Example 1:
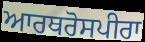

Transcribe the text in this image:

ਆਰਥਰੋਸਪੀਰਾ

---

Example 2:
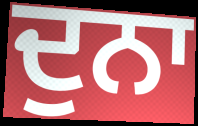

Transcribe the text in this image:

ਦੁਨਾ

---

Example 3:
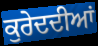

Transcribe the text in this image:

ਕੁਰੇਦਦੀਆਂ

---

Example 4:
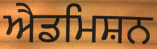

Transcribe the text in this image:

ਐਡਮਿਸ਼ਨ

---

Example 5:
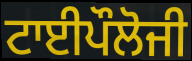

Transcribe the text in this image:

ਟਾਈਪੌਲੋਜੀ